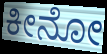
ಕೀನೋ